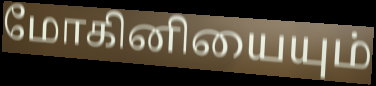
மோகினியையும்